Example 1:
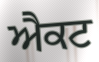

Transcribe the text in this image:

ਐਕਟ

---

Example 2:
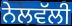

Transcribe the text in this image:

ਨੇਲਵੱਲੀ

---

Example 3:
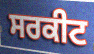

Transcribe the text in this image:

ਸਰਕੀਟ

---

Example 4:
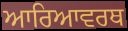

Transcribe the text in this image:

ਆਰਿਆਵਰਥ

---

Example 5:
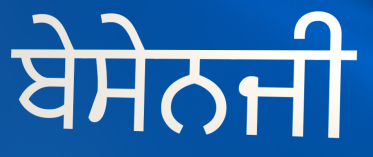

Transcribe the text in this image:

ਬੇਸੇਨਜੀ